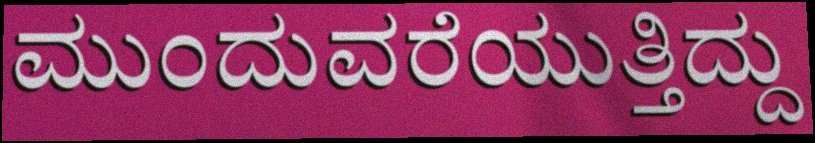
ಮುಂದುವರೆಯುತ್ತಿದ್ದು